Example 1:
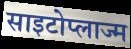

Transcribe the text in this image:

साइटोप्लाज्म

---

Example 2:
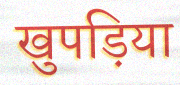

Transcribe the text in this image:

खुपड़िया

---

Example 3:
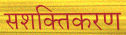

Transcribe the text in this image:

सशक्‍तिकरण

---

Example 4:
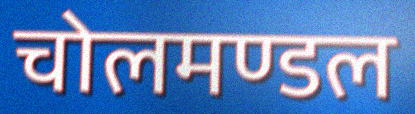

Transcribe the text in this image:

चोलमण्डल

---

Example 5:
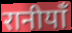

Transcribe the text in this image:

रानीयाँ